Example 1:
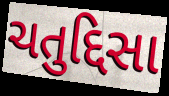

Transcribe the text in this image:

ચતુદ્દિસા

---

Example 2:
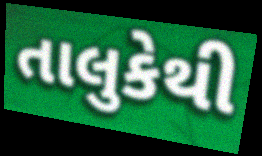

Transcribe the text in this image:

તાલુકેથી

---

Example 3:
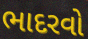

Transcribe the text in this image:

ભાદરવો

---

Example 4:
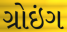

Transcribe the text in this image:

ગ્રોઇંગ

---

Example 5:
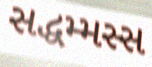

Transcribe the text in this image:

સદ્ધમ્મસ્સ